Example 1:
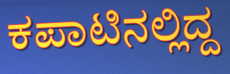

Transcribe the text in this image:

ಕಪಾಟಿನಲ್ಲಿದ್ದ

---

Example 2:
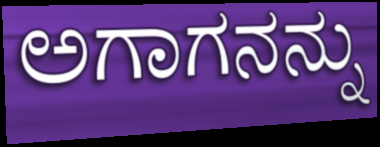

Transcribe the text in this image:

ಅಗಾಗನನ್ನು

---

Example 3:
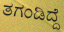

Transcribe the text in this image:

ತಗಂಡಿದ್ದೆ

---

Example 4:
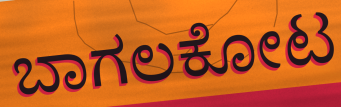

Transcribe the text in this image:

ಬಾಗಲಕೋಟ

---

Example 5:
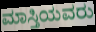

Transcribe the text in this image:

ಮಾಸ್ತಿಯವರು